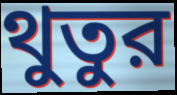
থুতুর